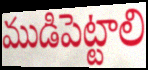
ముడిపెట్టాలి